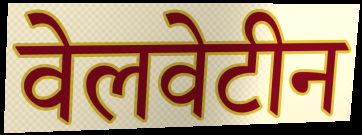
वेलवेटीन